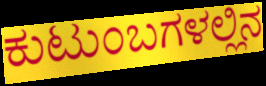
ಕುಟುಂಬಗಳಲ್ಲಿನ